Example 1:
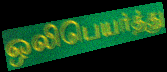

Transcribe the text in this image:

ஒலிபெயர்த்து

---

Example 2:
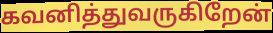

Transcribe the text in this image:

கவனித்துவருகிறேன்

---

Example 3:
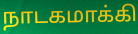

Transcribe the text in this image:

நாடகமாக்கி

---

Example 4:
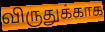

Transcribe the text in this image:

விருதுக்காக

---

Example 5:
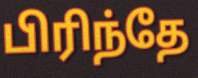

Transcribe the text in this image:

பிரிந்தே